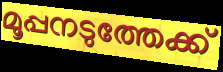
മൂപ്പനടുത്തേക്ക്